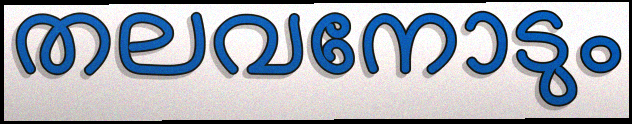
തലവനോടും